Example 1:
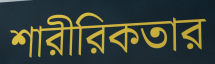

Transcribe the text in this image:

শারীরিকতার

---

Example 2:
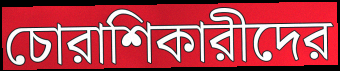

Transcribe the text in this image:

চোরাশিকারীদের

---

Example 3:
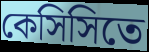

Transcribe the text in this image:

কেসিসিতে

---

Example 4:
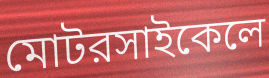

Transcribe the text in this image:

মোটরসাইকেলে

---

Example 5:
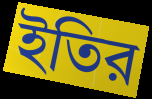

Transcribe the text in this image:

ইতির